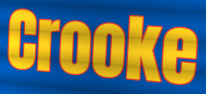
Crooke